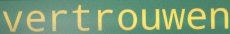
vertrouwen